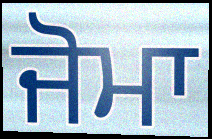
ਜੋਮਾ